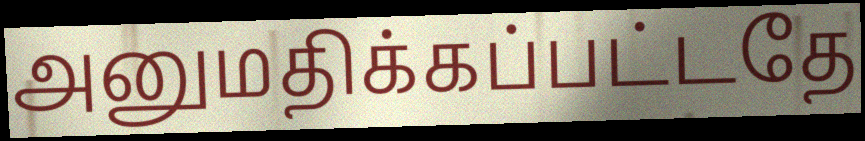
அனுமதிக்கப்பட்டதே